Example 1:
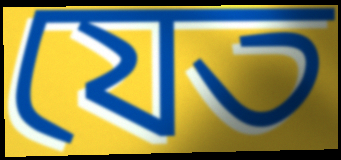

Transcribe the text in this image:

যেত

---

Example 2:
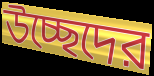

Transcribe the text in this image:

উচ্ছেদের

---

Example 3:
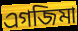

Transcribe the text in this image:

এগজিমা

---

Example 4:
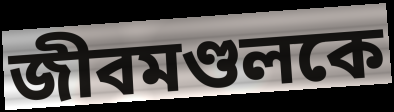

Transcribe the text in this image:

জীবমণ্ডলকে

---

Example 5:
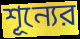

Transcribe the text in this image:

শূন্যের